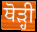
ਥੋਡ਼੍ਹੀ